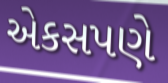
એકસપણે